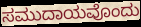
ಸಮುದಾಯವೊಂದು